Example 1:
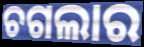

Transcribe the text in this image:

ଚଗଲାର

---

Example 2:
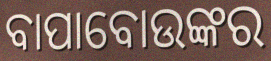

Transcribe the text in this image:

ବାପାବୋଉଙ୍କର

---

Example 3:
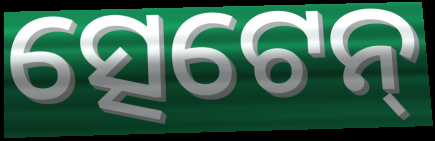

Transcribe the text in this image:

ତ୍ସେଟେନ୍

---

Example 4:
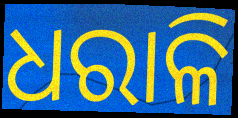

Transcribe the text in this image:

ଧରାଳି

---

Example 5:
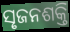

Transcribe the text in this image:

ସୃଜନଶକ୍ତି